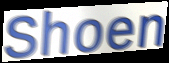
Shoen